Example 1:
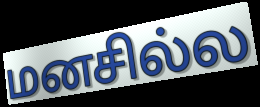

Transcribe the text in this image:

மனசில்ல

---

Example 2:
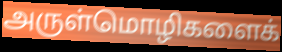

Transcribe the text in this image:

அருள்மொழிகளைக்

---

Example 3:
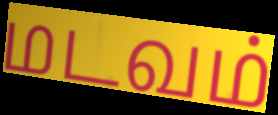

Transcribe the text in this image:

மடவம்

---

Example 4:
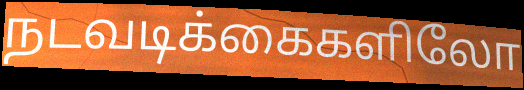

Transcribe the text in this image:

நடவடிக்கைகளிலோ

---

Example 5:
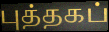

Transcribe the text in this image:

புத்தகப்